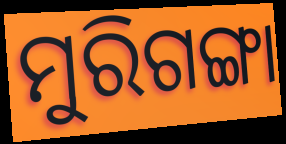
ମୁରିଗଙ୍ଗା